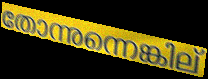
തോന്നുന്നെങ്കില്